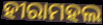
ହୀରାମହଲ